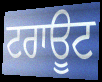
ਟਰਾਊਟ